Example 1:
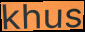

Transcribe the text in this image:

khus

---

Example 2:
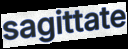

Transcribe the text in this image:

sagittate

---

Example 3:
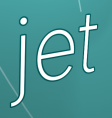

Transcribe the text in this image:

jet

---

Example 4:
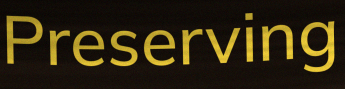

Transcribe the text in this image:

Preserving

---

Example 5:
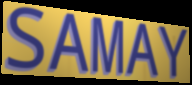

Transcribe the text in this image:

SAMAY